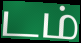
டம்